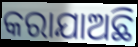
କରାଯାଅଛି